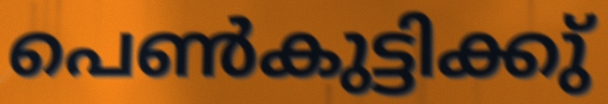
പെൺകുട്ടിക്കു്